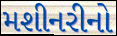
મશીનરીનો